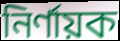
নির্ণায়ক